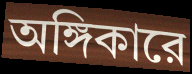
অঙ্গিকারে